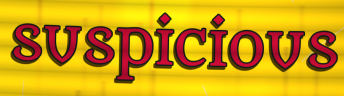
suspicious